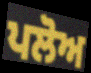
ਪਲੋਅ